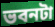
ভবনটা